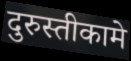
दुरुस्तीकामे